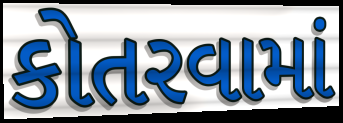
કોતરવામાં